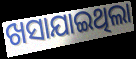
ଖସାଯାଇଥିଲା